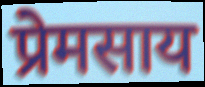
प्रेमसाय